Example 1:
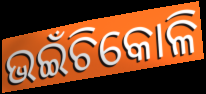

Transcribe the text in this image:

ଭଇଁଚିକୋଳି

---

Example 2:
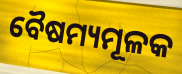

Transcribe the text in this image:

ବୈଷମ୍ୟମୂଳକ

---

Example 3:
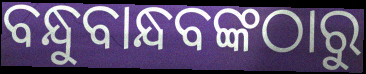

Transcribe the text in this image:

ବନ୍ଧୁବାନ୍ଧବଙ୍କଠାରୁ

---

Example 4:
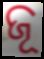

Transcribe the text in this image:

ଜୂ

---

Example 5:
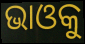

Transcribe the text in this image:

ଭାଓକୁ